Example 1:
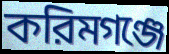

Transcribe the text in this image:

করিমগঞ্জে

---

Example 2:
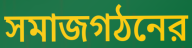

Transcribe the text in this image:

সমাজগঠনের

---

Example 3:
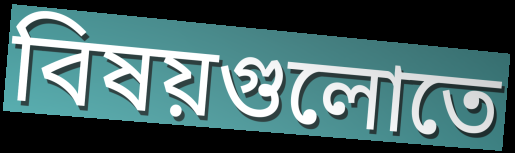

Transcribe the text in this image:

বিষয়গুলোতে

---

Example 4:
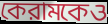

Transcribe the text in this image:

কেরামকেও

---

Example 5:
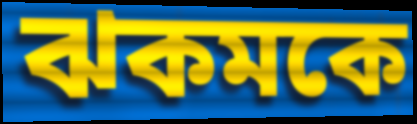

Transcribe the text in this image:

ঝকমকে